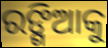
ରଙ୍ଗିଆକୁ